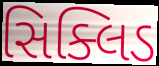
સિક્લિડ